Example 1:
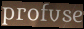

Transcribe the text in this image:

profuse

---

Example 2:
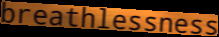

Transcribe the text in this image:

breathlessness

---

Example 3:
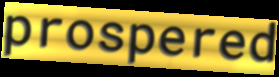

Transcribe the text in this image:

prospered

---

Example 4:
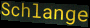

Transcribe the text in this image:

Schlange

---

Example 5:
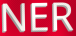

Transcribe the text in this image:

NER